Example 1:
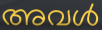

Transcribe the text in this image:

അവൾ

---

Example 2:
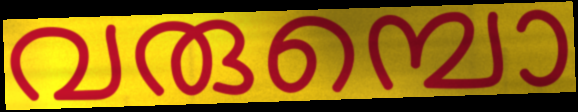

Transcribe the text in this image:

വരുമ്പൊ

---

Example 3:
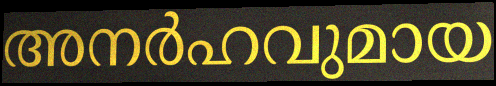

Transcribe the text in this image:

അനർഹവുമായ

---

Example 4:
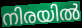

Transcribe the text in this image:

നിരയിൽ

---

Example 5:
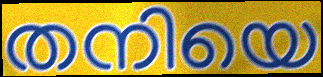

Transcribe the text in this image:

തനിയെ